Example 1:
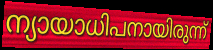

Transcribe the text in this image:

ന്യായാധിപനായിരുന്ന്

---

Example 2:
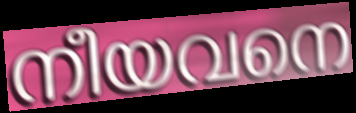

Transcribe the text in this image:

നീയവനെ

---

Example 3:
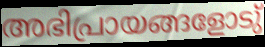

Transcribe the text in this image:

അഭിപ്രായങ്ങളോടു്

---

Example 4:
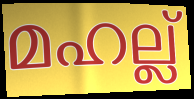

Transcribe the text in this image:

മഹല്ല്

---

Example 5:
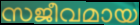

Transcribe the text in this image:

സജീവമായ